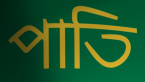
পাতি